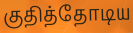
குதித்தோடிய